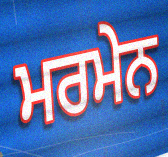
ਮਰਮੇਨ